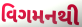
વિગમનથી